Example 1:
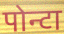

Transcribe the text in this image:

पोन्टा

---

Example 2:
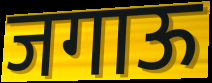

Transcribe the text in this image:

जगाऊ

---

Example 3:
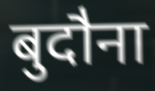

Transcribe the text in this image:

बुदौना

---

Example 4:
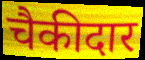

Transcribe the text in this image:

चैकीदार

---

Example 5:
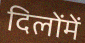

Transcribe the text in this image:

दिलोंमें